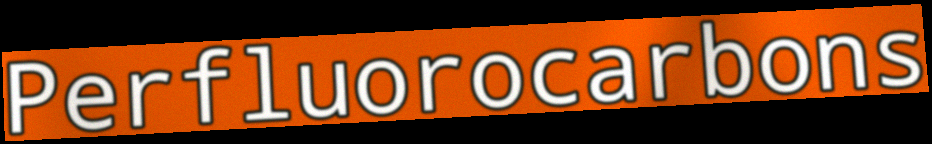
Perfluorocarbons